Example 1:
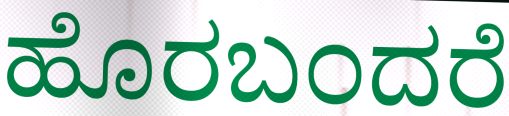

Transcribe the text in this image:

ಹೊರಬಂದರೆ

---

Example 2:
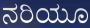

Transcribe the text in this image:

ನರಿಯೂ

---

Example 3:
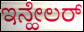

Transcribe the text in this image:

ಇನ್ಹೇಲರ್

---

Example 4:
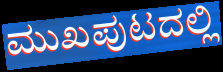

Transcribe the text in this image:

ಮುಖಪುಟದಲ್ಲಿ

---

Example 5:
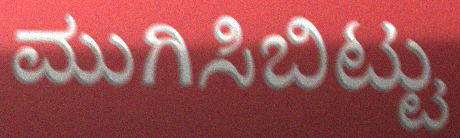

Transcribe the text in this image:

ಮುಗಿಸಿಬಿಟ್ಟು